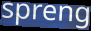
spreng